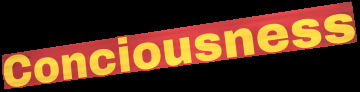
Conciousness